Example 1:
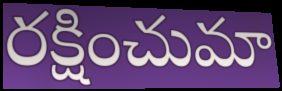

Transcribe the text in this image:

రక్షించుమా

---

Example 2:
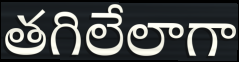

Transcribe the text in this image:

తగిలేలాగా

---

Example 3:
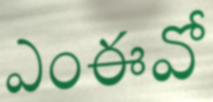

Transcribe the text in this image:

ఎంఈవో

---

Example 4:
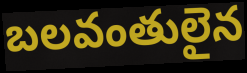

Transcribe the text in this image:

బలవంతులైన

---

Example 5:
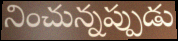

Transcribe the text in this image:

నించున్నప్పుడు